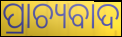
ପ୍ରାଚ୍ୟବାଦ